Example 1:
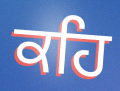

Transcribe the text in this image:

ਕਹਿ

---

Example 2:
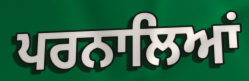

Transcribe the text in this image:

ਪਰਨਾਲਿਆਂ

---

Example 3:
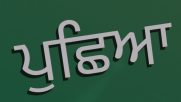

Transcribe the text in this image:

ਪੁਛਿਆ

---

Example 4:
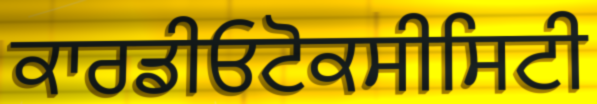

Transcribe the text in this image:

ਕਾਰਡੀਓਟੋਕਸੀਸਿਟੀ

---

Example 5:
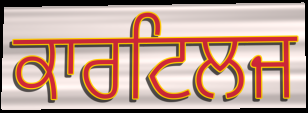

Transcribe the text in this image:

ਕਾਰਟਿਲਜ